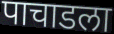
पाचाडला